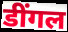
डींगल